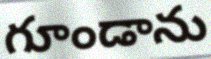
గూండాను